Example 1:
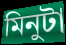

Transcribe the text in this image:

মিনুটা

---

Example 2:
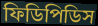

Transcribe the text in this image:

ফিডিপিডিস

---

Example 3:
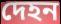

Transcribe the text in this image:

দেহন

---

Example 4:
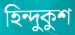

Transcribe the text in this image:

হিন্দুকুশ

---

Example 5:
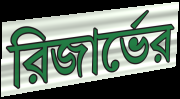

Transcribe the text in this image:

রিজার্ভের